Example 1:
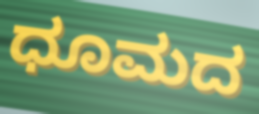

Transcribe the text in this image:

ಧೂಮದ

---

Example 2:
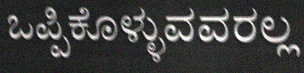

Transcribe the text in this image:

ಒಪ್ಪಿಕೊಳ್ಳುವವರಲ್ಲ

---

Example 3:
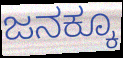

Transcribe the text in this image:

ಜನಕ್ಕೂ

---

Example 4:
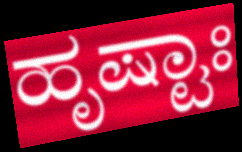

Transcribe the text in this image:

ಹೃಷ್ಟಾಃ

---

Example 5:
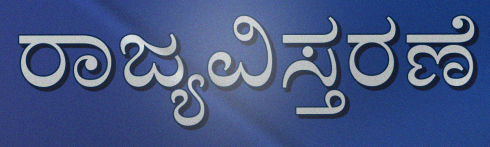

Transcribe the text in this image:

ರಾಜ್ಯವಿಸ್ತರಣೆ